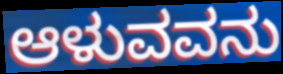
ಆಳುವವನು